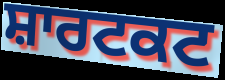
ਸ਼ਾਰਟਕਟ